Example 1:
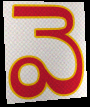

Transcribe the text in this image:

వె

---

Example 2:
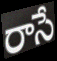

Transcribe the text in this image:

రాసే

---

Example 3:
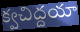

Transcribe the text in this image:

క్వచిద్దయా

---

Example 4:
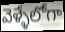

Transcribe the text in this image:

వెళ్ళేలోగా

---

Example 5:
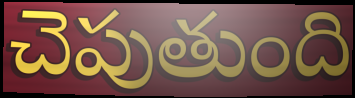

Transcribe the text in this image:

చెపుతుంది